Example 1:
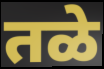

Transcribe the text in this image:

तळे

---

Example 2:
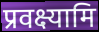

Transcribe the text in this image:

प्रवक्ष्यामि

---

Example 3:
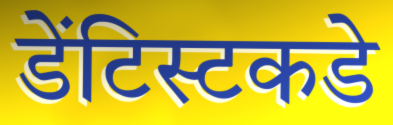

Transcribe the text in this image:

डेंटिस्टकडे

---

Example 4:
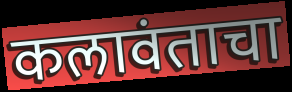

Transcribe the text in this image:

कलावंताचा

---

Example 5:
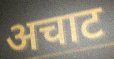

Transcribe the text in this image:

अचाट